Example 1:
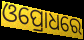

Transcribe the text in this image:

ଓପ୍ରୋଧରେ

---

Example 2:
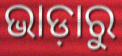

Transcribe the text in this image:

ଭାଡ଼ାରୁ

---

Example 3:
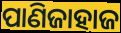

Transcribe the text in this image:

ପାଣିଜାହାଜ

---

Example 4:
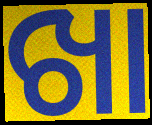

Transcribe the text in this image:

ଖା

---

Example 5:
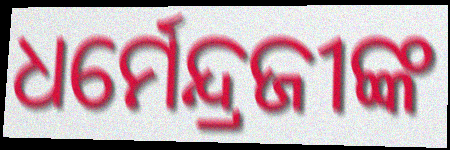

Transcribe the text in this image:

ଧର୍ମେନ୍ଦ୍ରଜୀଙ୍କ